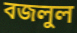
বজলুল